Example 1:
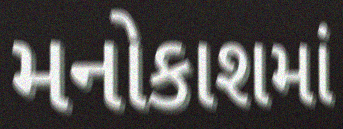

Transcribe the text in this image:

મનોકાશમાં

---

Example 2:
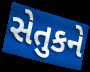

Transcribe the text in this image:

સેતુકને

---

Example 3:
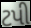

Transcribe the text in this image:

ટપી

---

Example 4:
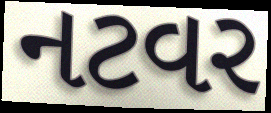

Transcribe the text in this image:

નટવર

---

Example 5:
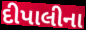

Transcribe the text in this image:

દીપાલીના